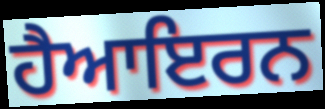
ਹੈਆਇਰਨ